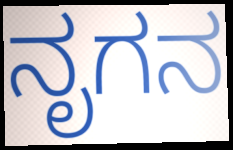
ನೃಗನ